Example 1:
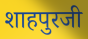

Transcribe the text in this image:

शाहपुरजी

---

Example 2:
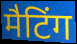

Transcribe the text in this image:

मैटिंग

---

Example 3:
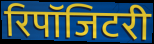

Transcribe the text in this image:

रिपॉजिटरी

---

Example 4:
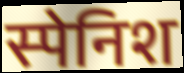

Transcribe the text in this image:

स्पेनिश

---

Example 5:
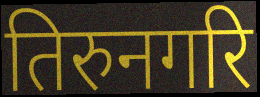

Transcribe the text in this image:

तिरुनगरि